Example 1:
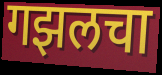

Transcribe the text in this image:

गझलचा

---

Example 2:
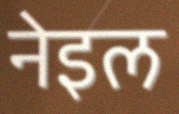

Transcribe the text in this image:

नेइल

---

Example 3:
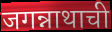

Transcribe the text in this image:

जगन्नाथाची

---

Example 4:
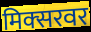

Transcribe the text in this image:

मिक्‍सरवर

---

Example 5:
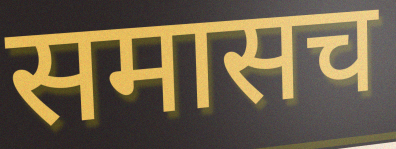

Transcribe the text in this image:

समासच